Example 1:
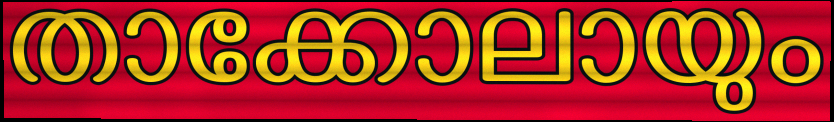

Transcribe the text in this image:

താക്കോലായും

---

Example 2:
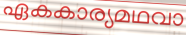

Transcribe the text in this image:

ഏകകാര്യമഥവാ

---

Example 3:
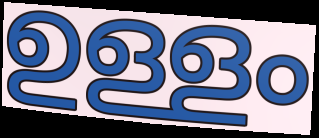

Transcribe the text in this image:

ഉള്ളം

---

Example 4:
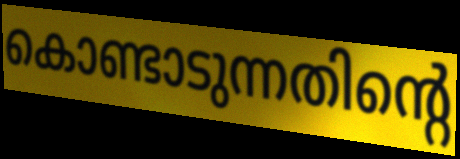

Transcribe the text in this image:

കൊണ്ടാടുന്നതിന്റെ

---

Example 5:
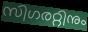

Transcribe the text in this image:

സിഗരറ്റിനും